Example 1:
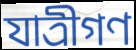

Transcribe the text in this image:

যাত্রীগণ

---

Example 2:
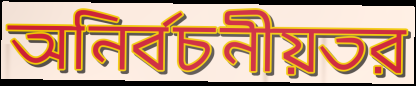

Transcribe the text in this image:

অনির্বচনীয়তর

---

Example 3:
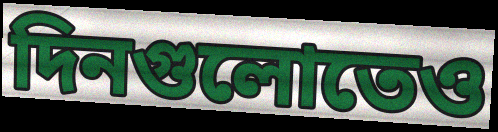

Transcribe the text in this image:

দিনগুলোতেও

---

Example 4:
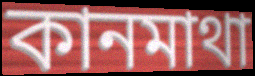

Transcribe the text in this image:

কানমাথা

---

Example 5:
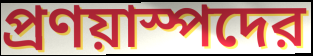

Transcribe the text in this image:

প্রণয়াস্পদের